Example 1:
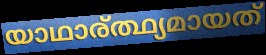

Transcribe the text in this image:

യാഥാര്ത്ഥ്യമായത്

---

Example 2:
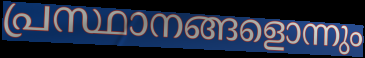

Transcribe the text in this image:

പ്രസ്ഥാനങ്ങളൊന്നും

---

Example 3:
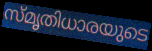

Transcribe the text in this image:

സ്മൃതിധാരയുടെ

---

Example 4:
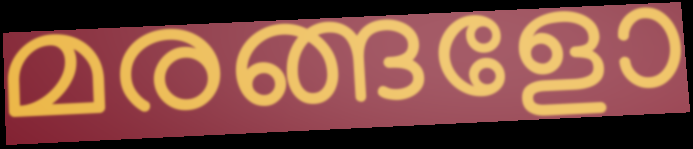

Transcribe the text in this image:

മരങ്ങളോ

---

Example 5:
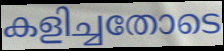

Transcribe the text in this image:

കളിച്ചതോടെ